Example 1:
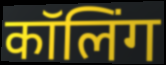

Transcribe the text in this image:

कॉलिंग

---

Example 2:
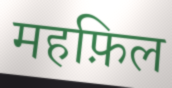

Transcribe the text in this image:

महफ़िल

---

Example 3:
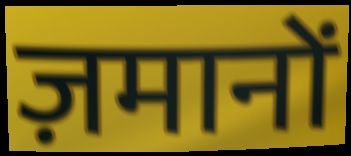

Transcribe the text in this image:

ज़मानों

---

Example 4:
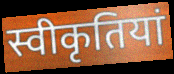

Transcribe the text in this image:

स्वीकृतियां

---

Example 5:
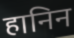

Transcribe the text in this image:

हानिन